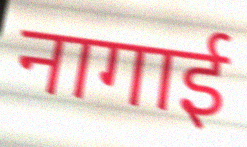
नागाई